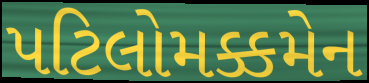
પટિલોમક્કમેન